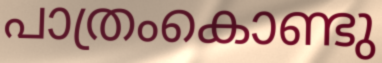
പാത്രംകൊണ്ടു